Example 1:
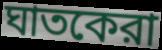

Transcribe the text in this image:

ঘাতকেরা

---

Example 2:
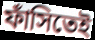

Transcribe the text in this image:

ফাঁসিতেই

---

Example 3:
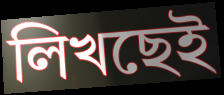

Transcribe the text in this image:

লিখছেই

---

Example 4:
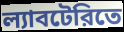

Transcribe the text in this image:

ল্যাবটেরিতে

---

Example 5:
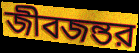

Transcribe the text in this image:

জীবজন্তর